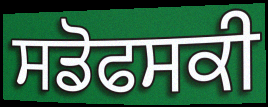
ਸਡੋਫਸਕੀ